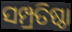
ସମ୍ପ୍ରତିଷ୍ଠା